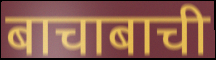
बाचाबाची